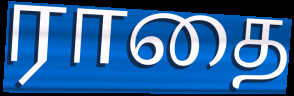
ராதை